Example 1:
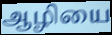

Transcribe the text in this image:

ஆழியை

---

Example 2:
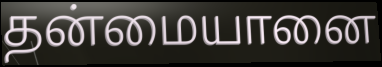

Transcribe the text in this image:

தன்மையானை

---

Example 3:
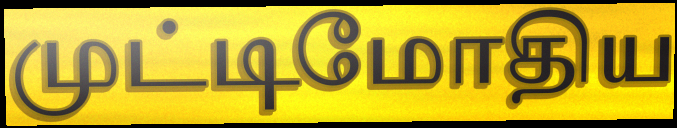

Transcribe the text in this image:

முட்டிமோதிய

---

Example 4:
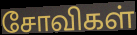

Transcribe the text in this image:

சோவிகள்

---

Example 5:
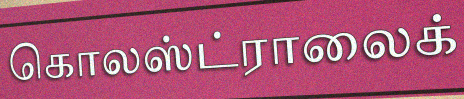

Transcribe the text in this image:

கொலஸ்ட்ராலைக்